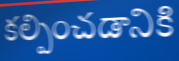
కల్పించడానికి